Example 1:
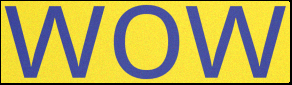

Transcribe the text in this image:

wow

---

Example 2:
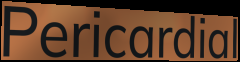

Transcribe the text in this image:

Pericardial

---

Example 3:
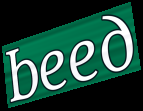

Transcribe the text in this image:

beed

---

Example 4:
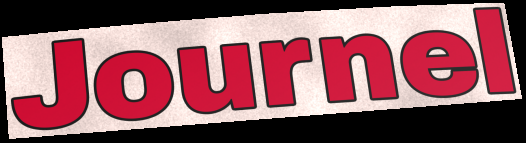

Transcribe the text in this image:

Journel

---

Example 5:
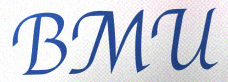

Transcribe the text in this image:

BMU